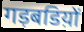
गड़बडिय़ों